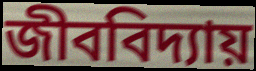
জীববিদ্যায়